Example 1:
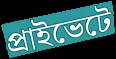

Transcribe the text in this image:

প্রাইভেটে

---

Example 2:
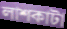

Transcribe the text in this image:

লাশকাটা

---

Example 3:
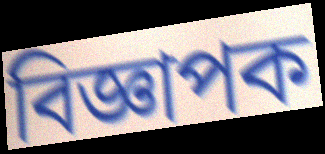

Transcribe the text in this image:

বিজ্ঞাপক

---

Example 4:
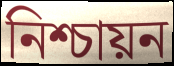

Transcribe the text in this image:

নিশ্চায়ন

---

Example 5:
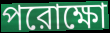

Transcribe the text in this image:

পরোক্ষো